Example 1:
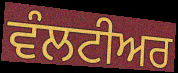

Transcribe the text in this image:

ਵੰਲਟੀਅਰ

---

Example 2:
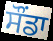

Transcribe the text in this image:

ਸੌਂਡਾ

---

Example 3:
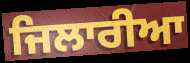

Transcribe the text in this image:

ਜਿਲਾਰੀਆ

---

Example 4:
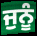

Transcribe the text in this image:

ਜੁਨੂੰ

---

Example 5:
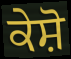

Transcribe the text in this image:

ਕੇਸ਼ੋ